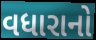
વધારાનો